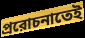
প্ররোচনাতেই